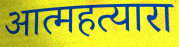
आत्महत्यारा